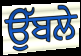
ਉੱਬਲੇ